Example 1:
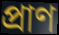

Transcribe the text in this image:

প্ৰাণ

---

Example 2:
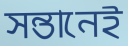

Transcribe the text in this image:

সন্তানেই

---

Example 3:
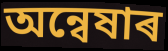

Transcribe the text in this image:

অন্বেষাৰ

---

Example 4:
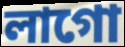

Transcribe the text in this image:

লাগো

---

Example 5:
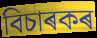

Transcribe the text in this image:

বিচাৰকৰ